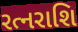
રત્નરાશિ